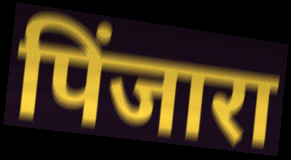
पिंजारा